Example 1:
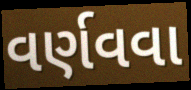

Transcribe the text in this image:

વર્ણવવા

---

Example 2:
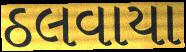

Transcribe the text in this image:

ઠલવાયા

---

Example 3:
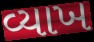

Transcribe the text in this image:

વ્યાખ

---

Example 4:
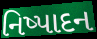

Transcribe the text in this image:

નિષ્પાદન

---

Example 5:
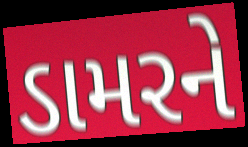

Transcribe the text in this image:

ડામરને